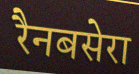
रैनबसेरा